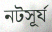
নটসূর্য